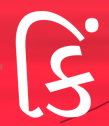
કિં